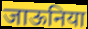
जाऊनिया